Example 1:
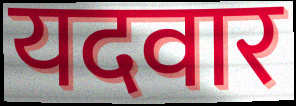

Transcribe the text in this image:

यदवार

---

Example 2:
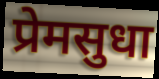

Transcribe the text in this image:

प्रेमसुधा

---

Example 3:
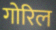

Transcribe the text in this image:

गोरिल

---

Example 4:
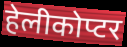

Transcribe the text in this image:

हेलीकोप्टर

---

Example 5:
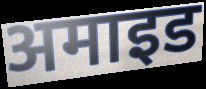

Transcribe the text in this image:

अमाइड